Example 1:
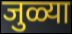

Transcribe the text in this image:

जुळ्या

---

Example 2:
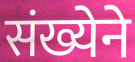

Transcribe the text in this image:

संख्येने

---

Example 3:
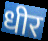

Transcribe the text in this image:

धीर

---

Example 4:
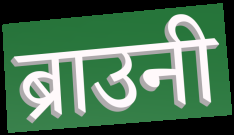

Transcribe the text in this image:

ब्राउनी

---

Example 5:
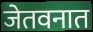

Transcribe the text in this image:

जेतवनात